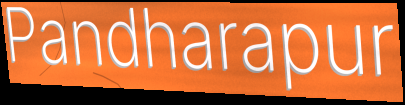
Pandharapur